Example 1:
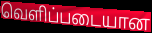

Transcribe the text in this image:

வெளிப்படையான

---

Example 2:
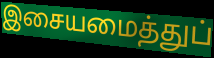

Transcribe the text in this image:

இசையமைத்துப்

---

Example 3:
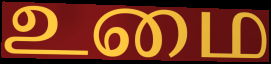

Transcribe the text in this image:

உமை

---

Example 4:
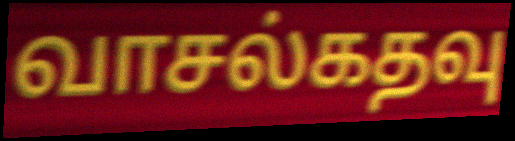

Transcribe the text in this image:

வாசல்கதவு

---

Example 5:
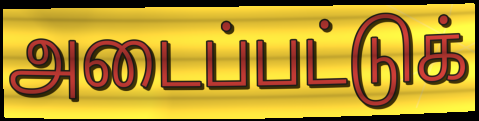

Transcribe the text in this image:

அடைப்பட்டுக்